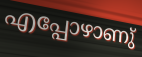
എപ്പോഴാണു്